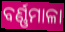
ବର୍ଣ୍ଣମାଳା